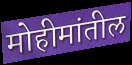
मोहीमांतील